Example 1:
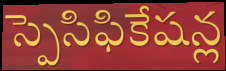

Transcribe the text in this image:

స్పెసిఫికేషన్ల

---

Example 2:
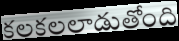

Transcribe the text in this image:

కలకలలాడుతోంది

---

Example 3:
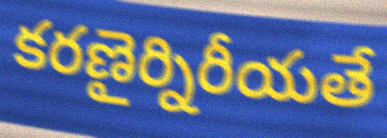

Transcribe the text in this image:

కరణైర్నిరీయతే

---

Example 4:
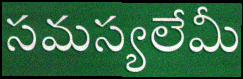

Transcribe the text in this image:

సమస్యలేమీ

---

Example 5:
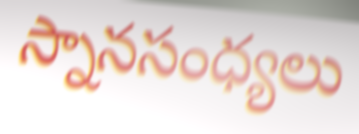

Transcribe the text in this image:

స్నానసంధ్యలు